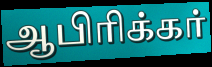
ஆபிரிக்கர்